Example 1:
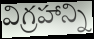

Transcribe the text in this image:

విగ్రహాన్ని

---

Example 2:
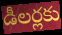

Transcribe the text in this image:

డీలర్లకు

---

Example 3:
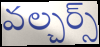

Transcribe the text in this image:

వల్చర్స్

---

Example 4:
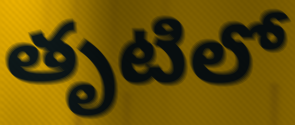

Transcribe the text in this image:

తృటిలో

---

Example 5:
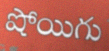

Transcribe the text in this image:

షోయిగు